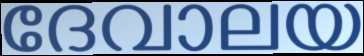
ദേവാലയ